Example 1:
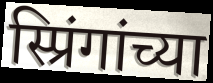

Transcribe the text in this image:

स्प्रिंगांच्या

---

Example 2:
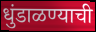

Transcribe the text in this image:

धुंडाळण्याची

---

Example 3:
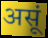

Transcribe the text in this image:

असूं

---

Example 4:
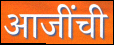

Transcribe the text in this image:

आजींची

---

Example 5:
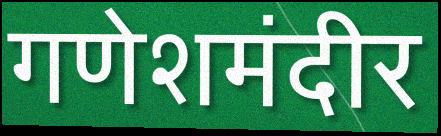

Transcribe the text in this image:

गणेशमंदीर